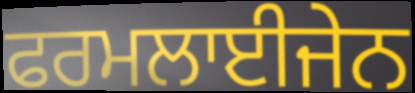
ਫਰਮਲਾਈਜੇਨ